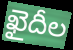
ఖైదీల